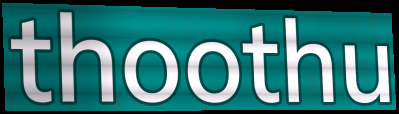
thoothu